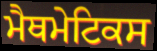
ਮੈਥਮੇਟਿਕਸ